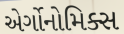
એર્ગોનોમિક્સ